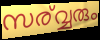
സര്വ്വരും